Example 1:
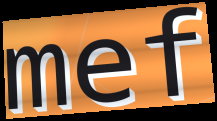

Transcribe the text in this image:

mef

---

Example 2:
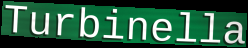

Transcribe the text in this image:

Turbinella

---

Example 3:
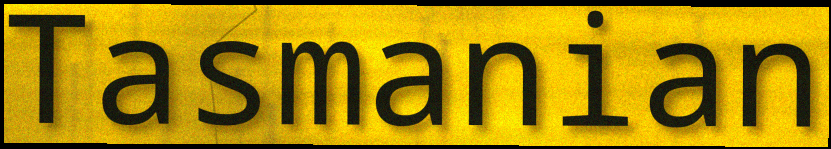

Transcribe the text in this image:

Tasmanian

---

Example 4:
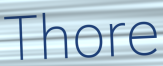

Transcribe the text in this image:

Thore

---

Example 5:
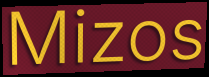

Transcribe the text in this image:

Mizos